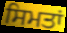
ਸਿਮਤਾਂ